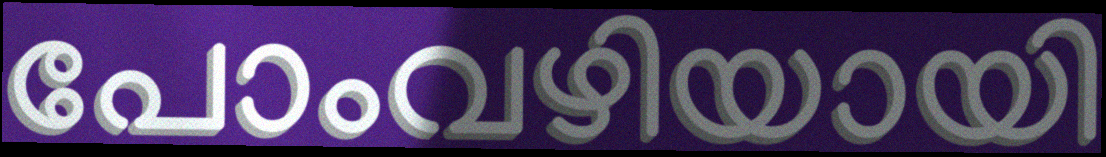
പോംവഴിയായി